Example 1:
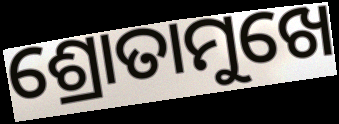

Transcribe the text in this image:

ଶ୍ରୋତାମୁଖେ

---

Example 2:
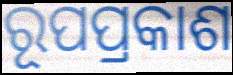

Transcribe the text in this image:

ରୂପପ୍ରକାଶ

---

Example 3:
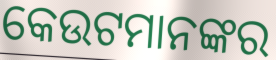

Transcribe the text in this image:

କେଉଟମାନଙ୍କର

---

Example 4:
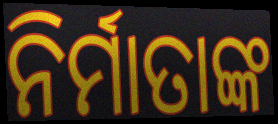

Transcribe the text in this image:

ନିର୍ମାତାଙ୍କ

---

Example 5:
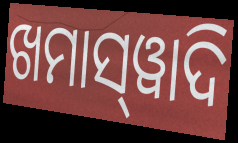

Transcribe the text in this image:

ଖମାସ୍‌ୱାଦି